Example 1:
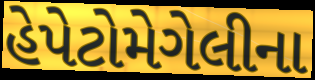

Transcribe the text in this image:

હેપેટોમેગેલીના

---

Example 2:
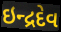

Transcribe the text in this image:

ઇન્દ્રદેવ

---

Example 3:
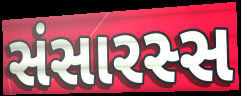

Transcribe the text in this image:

સંસારસ્સ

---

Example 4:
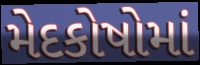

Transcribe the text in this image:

મેદકોષોમાં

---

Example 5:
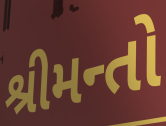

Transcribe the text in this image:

શ્રીમન્તો